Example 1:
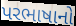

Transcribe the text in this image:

પરભાષાનો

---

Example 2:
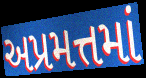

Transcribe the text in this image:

અપ્રમત્તમાં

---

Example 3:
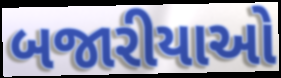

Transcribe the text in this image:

બજારીયાઓ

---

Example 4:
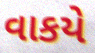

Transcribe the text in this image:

વાકયે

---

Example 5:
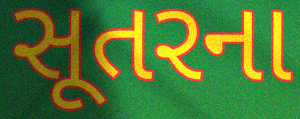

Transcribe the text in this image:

સૂતરના